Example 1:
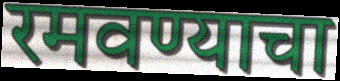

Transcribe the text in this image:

रमवण्याचा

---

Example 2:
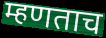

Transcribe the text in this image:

म्हणताच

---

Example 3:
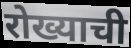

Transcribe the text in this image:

रोख्याची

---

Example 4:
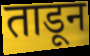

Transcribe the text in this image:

ताडून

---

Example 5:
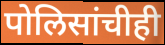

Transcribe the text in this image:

पोलिसांचीही